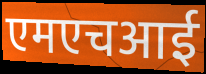
एमएचआई